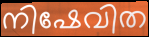
നിഷേവിത